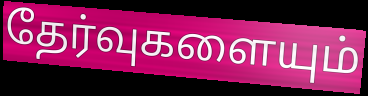
தேர்வுகளையும்